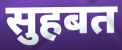
सुहबत